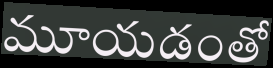
మూయడంతో